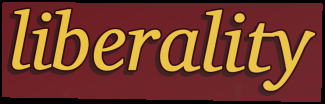
liberality